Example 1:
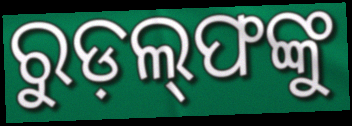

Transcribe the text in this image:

ରୁଡ଼ଲ୍‍ଫଙ୍କୁ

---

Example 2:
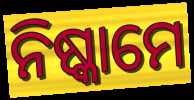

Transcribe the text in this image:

ନିଷ୍କାମେ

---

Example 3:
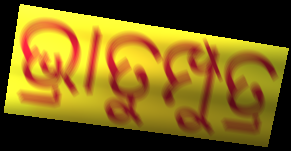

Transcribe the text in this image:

ଭ୍ରାତୁମ୍ପୁତ୍ର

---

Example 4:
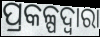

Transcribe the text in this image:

ପ୍ରକଳ୍ପଦ୍ୱାରା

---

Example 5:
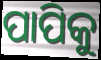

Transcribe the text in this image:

ପାପିକୁ